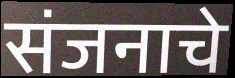
संजनाचे